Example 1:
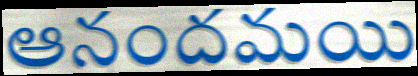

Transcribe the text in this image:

ఆనందమయి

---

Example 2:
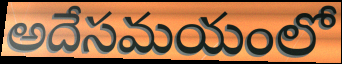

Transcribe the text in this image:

అదేసమయంలో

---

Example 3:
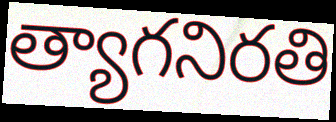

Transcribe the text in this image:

త్యాగనిరతి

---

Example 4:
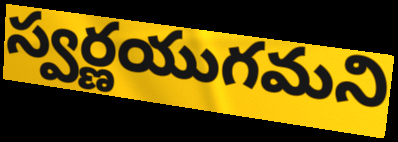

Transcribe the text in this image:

స్వర్ణయుగమని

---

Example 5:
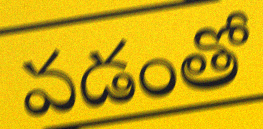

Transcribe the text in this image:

వడంతో